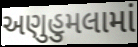
અણુહુમલામાં